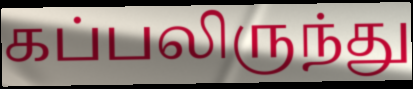
கப்பலிருந்து